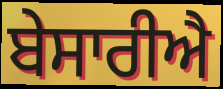
ਬੇਸਾਰੀਐ